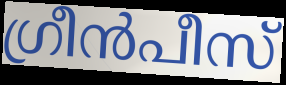
ഗ്രീൻപീസ്